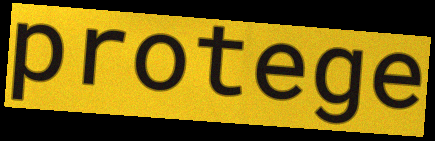
protege